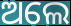
ଅଲେ